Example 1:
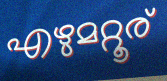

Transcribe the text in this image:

എഴുമറ്റൂര്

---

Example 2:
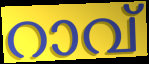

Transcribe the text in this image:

റാവ്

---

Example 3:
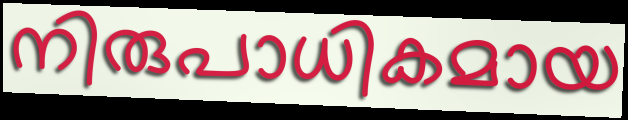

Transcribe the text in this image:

നിരുപാധികമായ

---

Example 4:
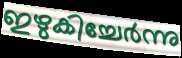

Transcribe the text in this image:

ഇഴുകിച്ചേർന്നു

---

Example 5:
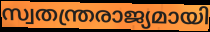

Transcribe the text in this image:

സ്വതന്ത്രരാജ്യമായി